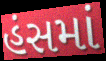
હંસમાં